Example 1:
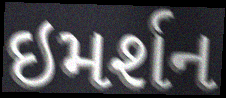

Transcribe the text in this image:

ઇમર્શન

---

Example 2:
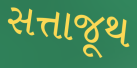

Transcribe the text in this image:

સત્તાજૂથ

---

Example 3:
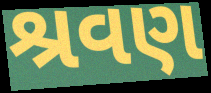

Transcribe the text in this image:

શ્રવણ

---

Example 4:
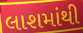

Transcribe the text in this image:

લાશમાંથી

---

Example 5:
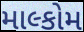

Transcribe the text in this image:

માલ્કોમ